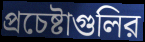
প্রচেষ্টাগুলির